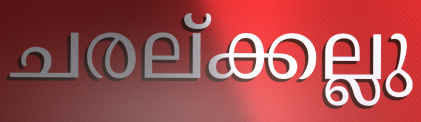
ചരല്ക്കല്ലു